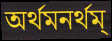
অর্থমনর্থম্